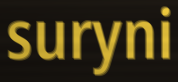
suryni